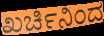
ಖರ್ಚಿನಿಂದ